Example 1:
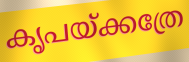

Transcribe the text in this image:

കൃപയ്ക്കത്രേ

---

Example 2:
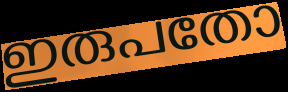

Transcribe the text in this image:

ഇരുപതോ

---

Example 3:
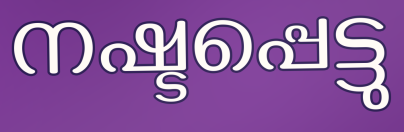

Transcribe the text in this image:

നഷ്ടപ്പെട്ടു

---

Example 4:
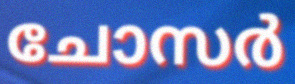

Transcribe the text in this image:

ചോസർ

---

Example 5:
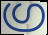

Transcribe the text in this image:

ഗ്ര